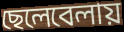
ছেলেবেলায়